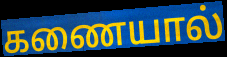
கணையால்